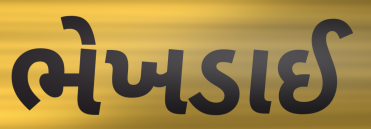
ભેખડાઈ